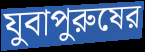
যুবাপুরুষের